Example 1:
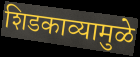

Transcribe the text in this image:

शिडकाव्यामुळे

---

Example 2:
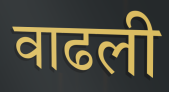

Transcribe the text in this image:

वाढली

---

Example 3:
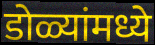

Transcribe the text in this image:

डोळ्यांमध्ये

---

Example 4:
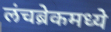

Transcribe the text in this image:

लंचब्रेकमध्ये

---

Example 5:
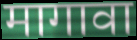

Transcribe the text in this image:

मागावा